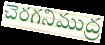
చెరగనిముద్ర